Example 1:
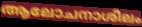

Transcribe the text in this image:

ആലോചനാശീലം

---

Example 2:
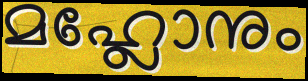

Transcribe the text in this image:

മഹ്ലോനും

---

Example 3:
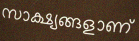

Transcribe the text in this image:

സാക്ഷ്യങ്ങളാണ്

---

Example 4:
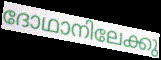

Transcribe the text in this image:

ദോഥാനിലേക്കു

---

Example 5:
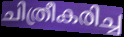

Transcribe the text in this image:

ചിത്രീകരിച്ച